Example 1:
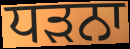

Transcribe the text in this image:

ਧੜਨਾ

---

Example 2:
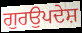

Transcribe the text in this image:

ਗੁਰਉਪਦੇਸ਼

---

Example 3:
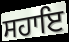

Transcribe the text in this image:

ਸਹਾਇ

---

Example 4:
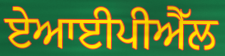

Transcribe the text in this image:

ਏਆਈਪੀਐੱਲ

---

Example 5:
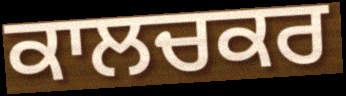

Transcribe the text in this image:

ਕਾਲਚਕਰ